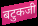
बटुकजी